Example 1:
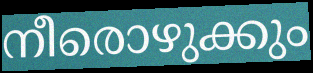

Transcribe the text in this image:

നീരൊഴുക്കും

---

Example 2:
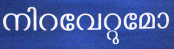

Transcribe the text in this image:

നിറവേറ്റുമോ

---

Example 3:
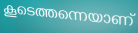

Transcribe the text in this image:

കൂടെത്തന്നെയാണ്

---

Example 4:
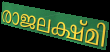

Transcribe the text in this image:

രാജലക്ഷ്മി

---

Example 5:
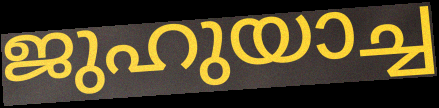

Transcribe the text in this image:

ജുഹുയാച്ച